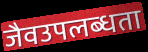
जैवउपलब्धता